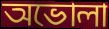
অভোলা